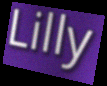
Lilly